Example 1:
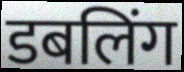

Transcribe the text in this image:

डबलिंग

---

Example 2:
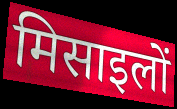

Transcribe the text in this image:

मिसाइलों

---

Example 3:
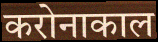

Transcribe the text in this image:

करोनाकाल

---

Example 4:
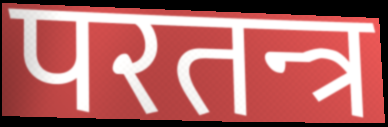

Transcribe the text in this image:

परतन्त्र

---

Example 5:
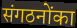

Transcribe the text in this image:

संगठनोंका